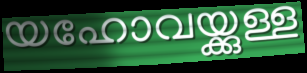
യഹോവയ്ക്കുള്ള